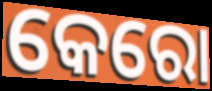
କେରୋ